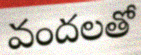
వందలతో